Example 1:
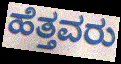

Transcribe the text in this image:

ಹೆತ್ತವರು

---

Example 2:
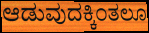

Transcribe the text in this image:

ಆಡುವುದಕ್ಕಿಂತಲೂ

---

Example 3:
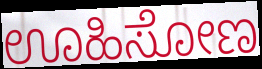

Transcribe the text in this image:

ಊಹಿಸೋಣ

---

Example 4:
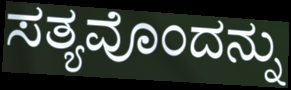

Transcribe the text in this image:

ಸತ್ಯವೊಂದನ್ನು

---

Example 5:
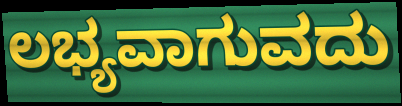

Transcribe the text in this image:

ಲಭ್ಯವಾಗುವದು